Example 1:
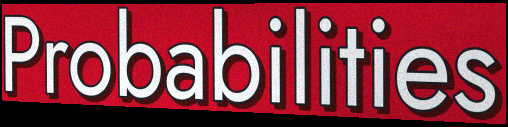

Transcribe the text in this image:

Probabilities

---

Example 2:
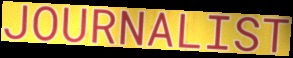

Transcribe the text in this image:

JOURNALIST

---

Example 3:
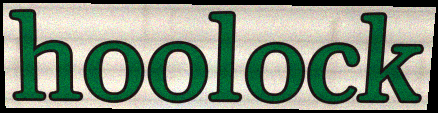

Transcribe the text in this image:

hoolock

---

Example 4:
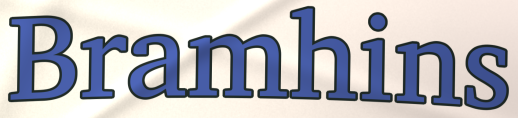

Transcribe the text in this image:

Bramhins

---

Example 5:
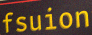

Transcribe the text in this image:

fsuion